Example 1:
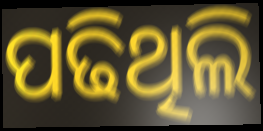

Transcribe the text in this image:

ପଢିଥିଲି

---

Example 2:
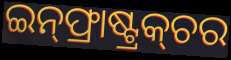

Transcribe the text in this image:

ଇନ୍‌ଫ୍ରାଷ୍ଟ୍ରକ୍‌ଚର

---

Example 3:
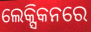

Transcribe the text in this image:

ଲେକ୍ସିକନରେ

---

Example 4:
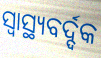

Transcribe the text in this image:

ସ୍ଵାସ୍ଥ୍ୟବର୍ଦ୍ଦକ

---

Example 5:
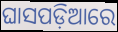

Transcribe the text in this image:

ଘାସପଡ଼ିଆରେ